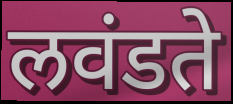
लवंडते